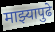
माझ्यापुढे